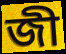
জী